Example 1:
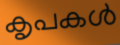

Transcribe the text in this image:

കൃപകൾ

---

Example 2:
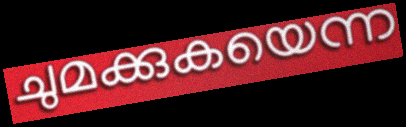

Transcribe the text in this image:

ചുമക്കുകയെന്ന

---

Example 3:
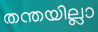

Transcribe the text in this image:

തന്തയില്ലാ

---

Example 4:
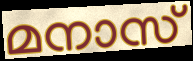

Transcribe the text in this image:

മനാസ്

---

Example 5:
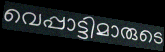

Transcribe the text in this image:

വെപ്പാട്ടിമാരുടെ